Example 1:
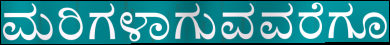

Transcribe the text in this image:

ಮರಿಗಳಾಗುವವರೆಗೂ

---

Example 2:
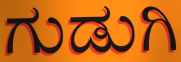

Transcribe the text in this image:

ಗುಡುಗಿ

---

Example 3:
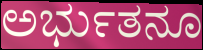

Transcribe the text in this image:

ಅರ್ಭುತನೂ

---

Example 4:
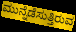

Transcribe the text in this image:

ಮುನ್ನೆಡೆಸುತ್ತಿರುವ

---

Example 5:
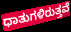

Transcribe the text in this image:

ಧಾತುಗಳಿರುತ್ತವೆ